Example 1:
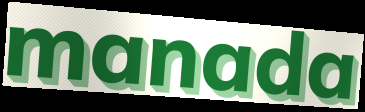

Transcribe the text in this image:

manada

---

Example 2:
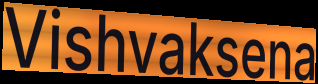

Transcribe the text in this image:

Vishvaksena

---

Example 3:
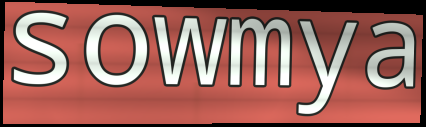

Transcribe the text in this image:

sowmya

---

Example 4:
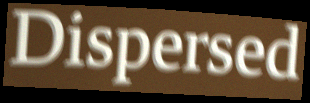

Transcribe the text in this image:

Dispersed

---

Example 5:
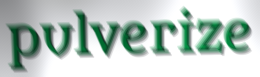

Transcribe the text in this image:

pulverize